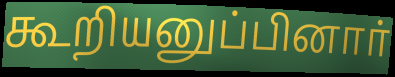
கூறியனுப்பினார்